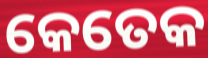
କେତେକ